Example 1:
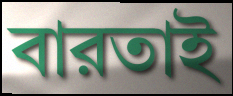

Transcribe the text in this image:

বারতাই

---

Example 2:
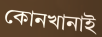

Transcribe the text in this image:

কোনখানাই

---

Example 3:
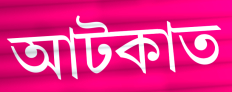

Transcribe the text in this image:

আটকাত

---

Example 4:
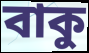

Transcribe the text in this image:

বাকু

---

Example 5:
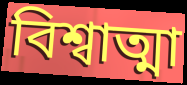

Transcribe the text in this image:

বিশ্বাত্মা